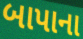
બાપાના